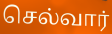
செல்வார்